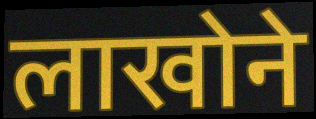
लाखोने